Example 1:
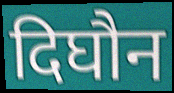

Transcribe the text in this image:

दिघौन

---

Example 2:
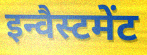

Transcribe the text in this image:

इन्वैस्टमेंट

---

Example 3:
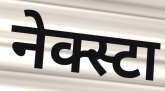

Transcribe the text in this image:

नेक्स्टा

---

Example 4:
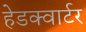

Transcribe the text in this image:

हेडक्वार्टर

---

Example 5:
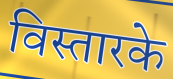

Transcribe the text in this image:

विस्तारके